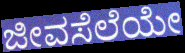
ಜೀವಸೆಲೆಯೇ